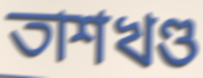
তাশখণ্ড